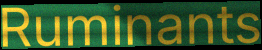
Ruminants